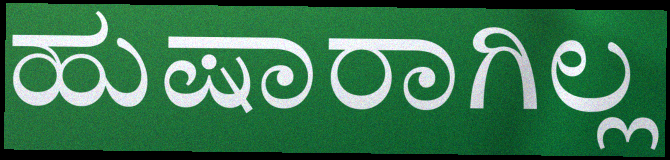
ಹುಷಾರಾಗಿಲ್ಲ